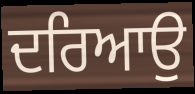
ਦਰਿਆਉ